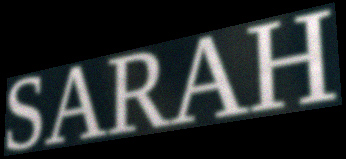
SARAH